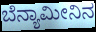
ಬೆನ್ಯಾಮೀನಿನ